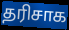
தரிசாக